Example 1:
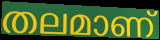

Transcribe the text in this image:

തലമാണ്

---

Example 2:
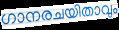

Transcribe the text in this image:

ഗാനരചയിതാവും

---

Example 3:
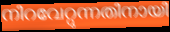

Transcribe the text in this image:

നിറവേറ്റുന്നതിനായി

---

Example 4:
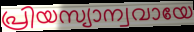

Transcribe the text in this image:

പ്രിയസ്യാന്വവായേ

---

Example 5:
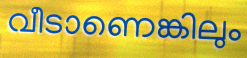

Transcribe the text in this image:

വീടാണെങ്കിലും